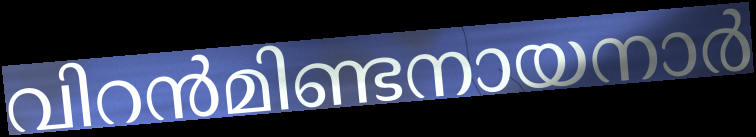
വിറൻമിണ്ടനായനാർ